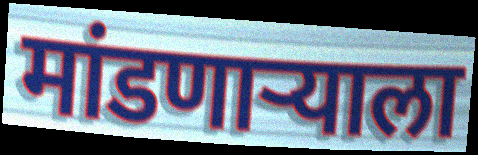
मांडणाऱ्याला